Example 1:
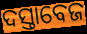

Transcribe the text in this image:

ଦସ୍ତାବେଜ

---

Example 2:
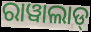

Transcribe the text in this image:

ରାୱାଲାଡ୍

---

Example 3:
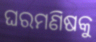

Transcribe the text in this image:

ଘରମଣିଷକୁ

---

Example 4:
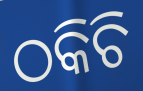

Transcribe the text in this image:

ଠକିଚି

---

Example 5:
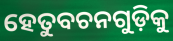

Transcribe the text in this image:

ହେତୁବଚନଗୁଡ଼ିକୁ